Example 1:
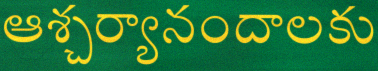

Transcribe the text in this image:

ఆశ్చర్యానందాలకు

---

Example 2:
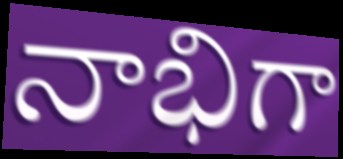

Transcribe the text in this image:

నాభిగా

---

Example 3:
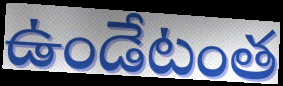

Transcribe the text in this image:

ఉండేటంత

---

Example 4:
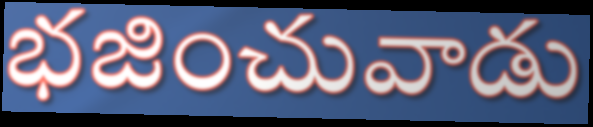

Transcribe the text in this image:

భజించువాడు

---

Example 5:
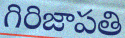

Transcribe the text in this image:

గిరిజాపతి